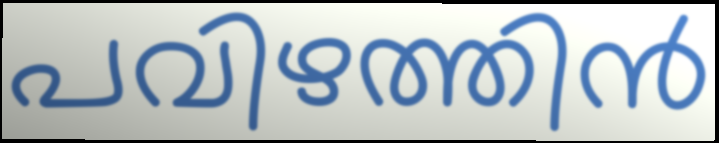
പവിഴത്തിൻ